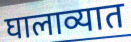
घालाव्यात